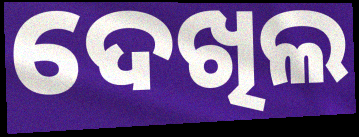
ଦେଖିଲ